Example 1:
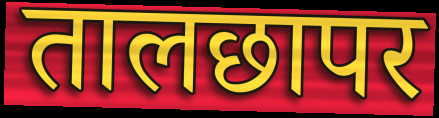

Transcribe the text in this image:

तालछापर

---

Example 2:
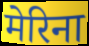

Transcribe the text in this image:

मेरिना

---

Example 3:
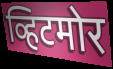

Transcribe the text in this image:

व्हिटमोर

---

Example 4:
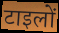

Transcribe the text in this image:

टाइलों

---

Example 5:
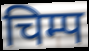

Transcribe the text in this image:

चिम्प